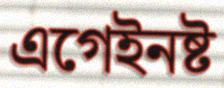
এগেইনষ্ট